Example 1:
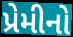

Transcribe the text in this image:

પ્રેમીનો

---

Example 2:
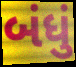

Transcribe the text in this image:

બંધું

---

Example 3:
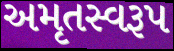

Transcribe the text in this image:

અમૃતસ્વરૂપ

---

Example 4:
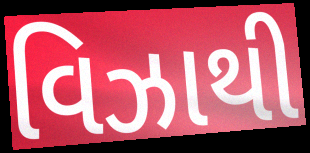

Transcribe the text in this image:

વિઝાથી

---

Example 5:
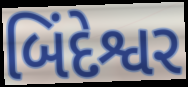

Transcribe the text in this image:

બિંદેશ્વર